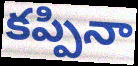
కప్పినా